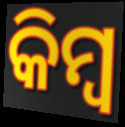
କିମ୍ବ